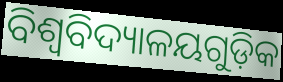
ବିଶ୍ଵବିଦ୍ୟାଳୟଗୁଡ଼ିକ